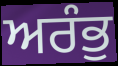
ਅਰੰਭੁ